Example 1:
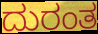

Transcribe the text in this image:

ದುರಂತ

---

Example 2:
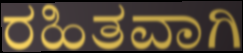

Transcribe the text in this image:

ರಹಿತವಾಗಿ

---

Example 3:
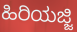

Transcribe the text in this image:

ಹಿರಿಯಜ್ಜಿ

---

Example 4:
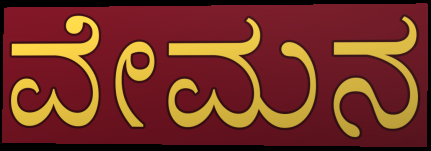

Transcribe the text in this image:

ವೇಮನ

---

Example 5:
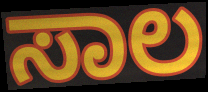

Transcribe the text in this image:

ಸಾಲ